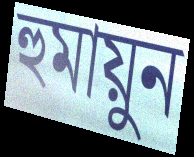
হুমায়ুন